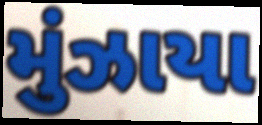
મુંઝાયા